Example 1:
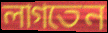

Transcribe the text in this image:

লাগতেন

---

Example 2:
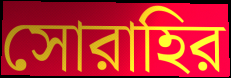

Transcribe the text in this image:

সোরাহির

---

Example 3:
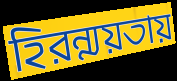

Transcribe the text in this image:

হিরন্ময়তায়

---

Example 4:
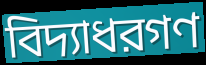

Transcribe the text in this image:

বিদ্যাধরগণ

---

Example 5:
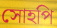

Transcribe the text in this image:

সোহপি